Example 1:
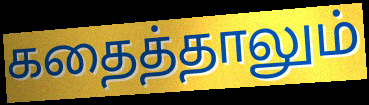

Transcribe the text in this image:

கதைத்தாலும்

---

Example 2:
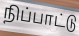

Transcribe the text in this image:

நிப்பாட்டு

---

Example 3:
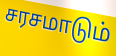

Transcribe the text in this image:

சரசமாடும்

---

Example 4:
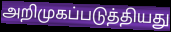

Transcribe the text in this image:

அறிமுகப்படுத்தியது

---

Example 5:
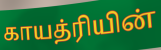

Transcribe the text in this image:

காயத்ரியின்